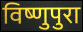
विष्णुपुरा